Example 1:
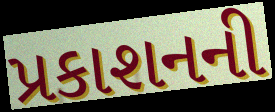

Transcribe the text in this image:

પ્રકાશનની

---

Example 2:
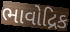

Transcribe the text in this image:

ભાવોદ્રિક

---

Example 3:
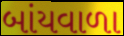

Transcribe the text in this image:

બાંયવાળા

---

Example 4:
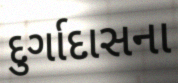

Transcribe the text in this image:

દુર્ગાદાસના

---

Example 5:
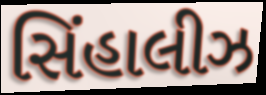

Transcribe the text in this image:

સિંહાલીઝ